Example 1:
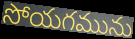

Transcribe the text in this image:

సోయగమును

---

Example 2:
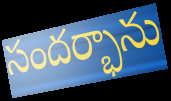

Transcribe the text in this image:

సందర్భాను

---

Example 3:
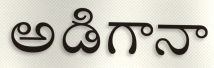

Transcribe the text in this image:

అడిగానా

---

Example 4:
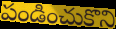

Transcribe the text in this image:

పండించుకొని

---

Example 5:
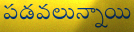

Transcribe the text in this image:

పడవలున్నాయి